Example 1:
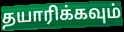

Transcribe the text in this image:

தயாரிக்கவும்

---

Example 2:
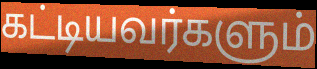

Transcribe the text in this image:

கட்டியவர்களும்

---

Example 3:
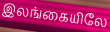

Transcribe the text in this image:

இலங்கையிலே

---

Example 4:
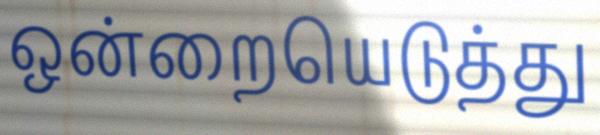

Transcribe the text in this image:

ஒன்றையெடுத்து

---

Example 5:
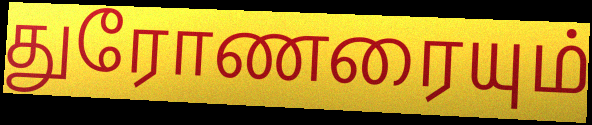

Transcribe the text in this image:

துரோணரையும்